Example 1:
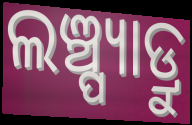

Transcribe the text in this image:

ଲଞ୍ଚ୍ପ୍ୟାଡ୍ରୁ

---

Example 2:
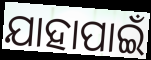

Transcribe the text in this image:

ଯାହାପାଇଁ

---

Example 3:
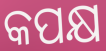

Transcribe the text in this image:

କପକ୍ଷ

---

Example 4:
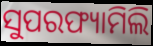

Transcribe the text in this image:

ସୁପରଫ୍ୟାମିଲି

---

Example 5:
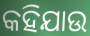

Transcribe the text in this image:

କହିଯାଉ